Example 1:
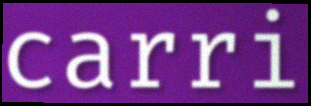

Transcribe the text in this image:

carri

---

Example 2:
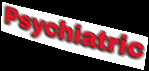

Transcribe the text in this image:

Psychiatric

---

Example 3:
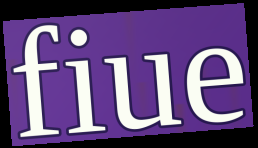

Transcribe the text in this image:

fiue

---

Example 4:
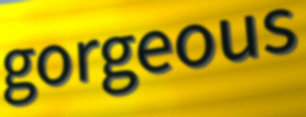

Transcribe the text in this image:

gorgeous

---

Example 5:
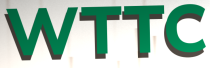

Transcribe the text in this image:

WTTC